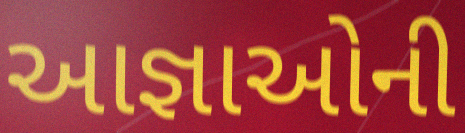
આજ્ઞાઓની